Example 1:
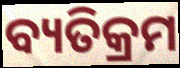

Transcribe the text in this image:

ବ୍ୟତିକ୍ରମ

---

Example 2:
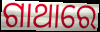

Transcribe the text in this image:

ଗାଥାରେ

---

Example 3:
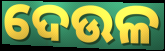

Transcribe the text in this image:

ଦେଉଳ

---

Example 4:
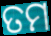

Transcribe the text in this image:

ତମ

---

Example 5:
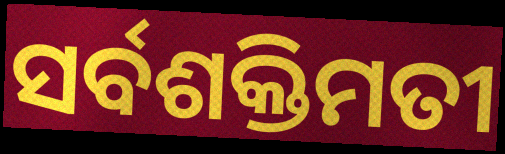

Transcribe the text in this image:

ସର୍ବଶକ୍ତିମତୀ